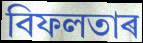
বিফলতাৰ